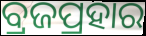
ବ୍ରଜପ୍ରହାର